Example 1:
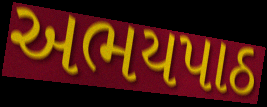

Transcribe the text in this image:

અભયપાઠ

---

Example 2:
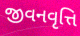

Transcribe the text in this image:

જીવનવૃત્તિ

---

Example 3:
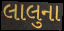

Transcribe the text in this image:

લાલુના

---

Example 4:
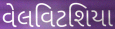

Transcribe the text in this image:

વેલવિટશિયા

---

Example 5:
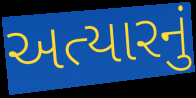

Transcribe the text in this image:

અત્યારનું